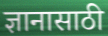
ज्ञानासाठी